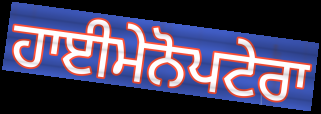
ਹਾਈਮੇਨੋਪਟੇਰਾ